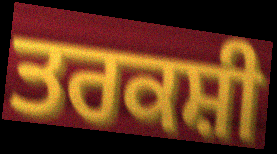
ਤਰਕਸ਼ੀ